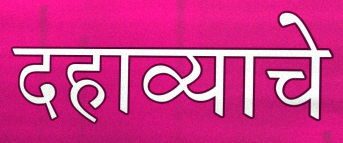
दहाव्याचे